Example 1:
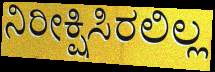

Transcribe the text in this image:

ನಿರೀಕ್ಷಿಸಿರಲಿಲ್ಲ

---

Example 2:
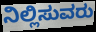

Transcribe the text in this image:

ನಿಲ್ಲಿಸುವರು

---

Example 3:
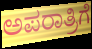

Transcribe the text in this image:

ಅಪರಾತ್ರಿಗೆ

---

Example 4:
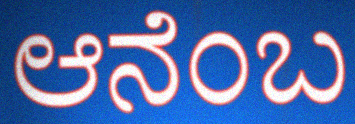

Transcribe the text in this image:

ಆನೆಂಬ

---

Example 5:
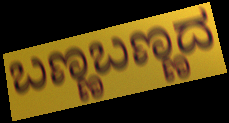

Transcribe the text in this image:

ಬಣ್ಣಬಣ್ಣದ